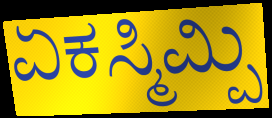
ಏಕಸ್ಮಿಮ್ಪಿ